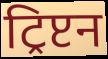
ट्रिप्टन